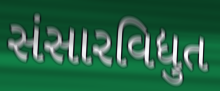
સંસારવિદ્યુત